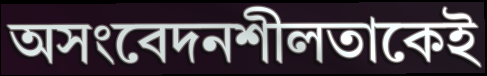
অসংবেদনশীলতাকেই